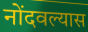
नोंदवल्यास